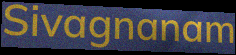
Sivagnanam